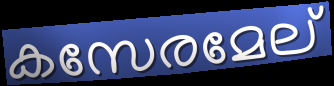
കസേരമേല്